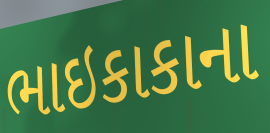
ભાઇકાકાના